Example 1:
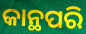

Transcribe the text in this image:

କାନ୍ଥପରି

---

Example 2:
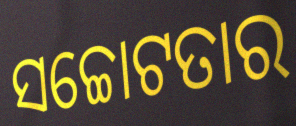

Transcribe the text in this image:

ସଚ୍ଚୋଟତାର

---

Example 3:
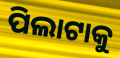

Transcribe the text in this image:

ପିଲାଟାକୁ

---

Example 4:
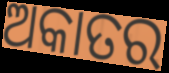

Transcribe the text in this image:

ଅକାତର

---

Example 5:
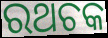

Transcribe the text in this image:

ରଥଚକ